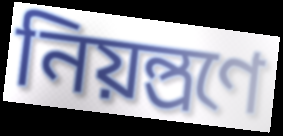
নিয়ন্ত্রণে